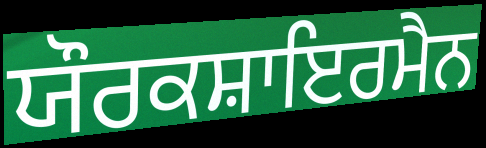
ਯੌਰਕਸ਼ਾਇਰਮੈਨ